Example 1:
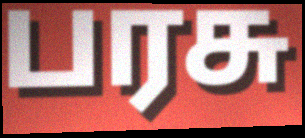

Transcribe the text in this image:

பரசு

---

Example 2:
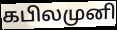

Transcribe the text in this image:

கபிலமுனி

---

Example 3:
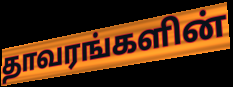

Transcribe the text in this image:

தாவரங்களின்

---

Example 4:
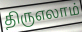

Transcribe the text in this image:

திருஎலாம்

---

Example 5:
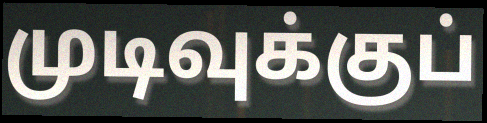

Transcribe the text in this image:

முடிவுக்குப்